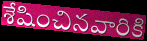
శేషించినవారికి